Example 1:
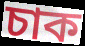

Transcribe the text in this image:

চাক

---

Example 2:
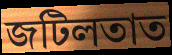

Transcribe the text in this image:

জটিলতাত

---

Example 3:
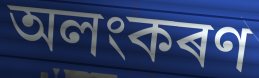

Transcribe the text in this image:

অলংকৰণ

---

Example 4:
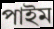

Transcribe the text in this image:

পাইম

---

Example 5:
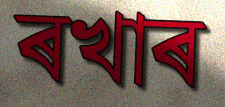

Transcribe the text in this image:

ৰখাৰ